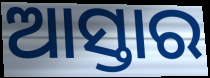
ଆସ୍ତାର